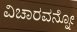
ವಿಚಾರವನ್ನೋ